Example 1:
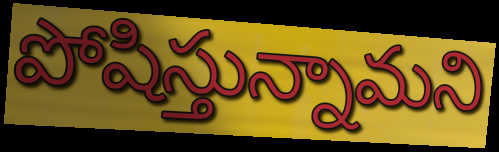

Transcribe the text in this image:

పోషిస్తున్నామని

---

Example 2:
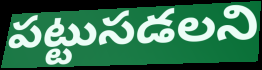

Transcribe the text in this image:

పట్టుసడలని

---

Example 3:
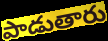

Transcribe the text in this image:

పాడుతారు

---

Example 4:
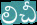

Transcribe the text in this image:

లిచీ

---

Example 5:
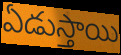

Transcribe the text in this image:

ఏడుస్తాయి